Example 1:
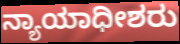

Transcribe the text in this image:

ನ್ಯಾಯಾಧೀಶರು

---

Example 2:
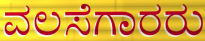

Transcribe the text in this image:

ವಲಸೆಗಾರರು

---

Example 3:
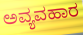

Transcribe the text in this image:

ಅವ್ಯವಹಾರ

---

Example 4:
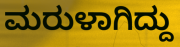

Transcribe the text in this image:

ಮರುಳಾಗಿದ್ದು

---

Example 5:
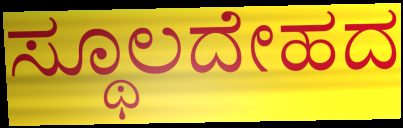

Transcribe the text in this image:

ಸ್ಥೂಲದೇಹದ